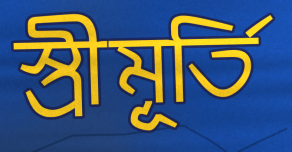
স্ত্রীমূর্তি